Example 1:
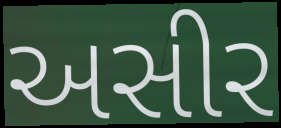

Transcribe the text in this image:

અસીર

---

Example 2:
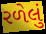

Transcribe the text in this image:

રળેલું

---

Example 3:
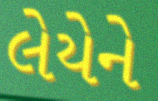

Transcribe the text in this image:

લેયેને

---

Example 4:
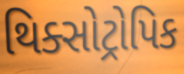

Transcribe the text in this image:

થિક્સોટ્રોપિક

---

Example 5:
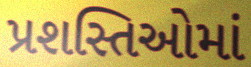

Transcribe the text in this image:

પ્રશસ્તિઓમાં